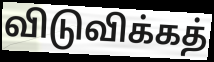
விடுவிக்கத்